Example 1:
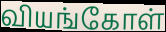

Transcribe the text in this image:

வியங்கோள்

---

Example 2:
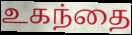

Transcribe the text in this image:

உகந்தை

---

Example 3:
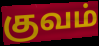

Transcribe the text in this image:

குவம்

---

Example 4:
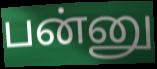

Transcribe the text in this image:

பன்னு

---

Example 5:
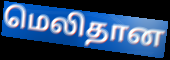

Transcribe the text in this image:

மெலிதான